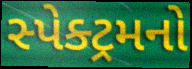
સ્પેક્ટ્રમનો